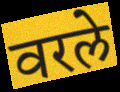
वरले